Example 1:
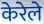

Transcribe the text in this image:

केरेले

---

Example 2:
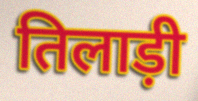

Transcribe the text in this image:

तिलाड़ी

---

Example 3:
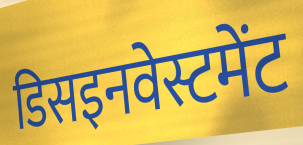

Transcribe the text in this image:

डिसइनवेस्टमेंट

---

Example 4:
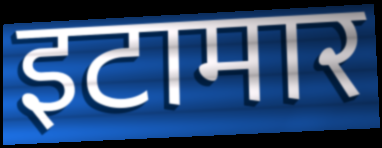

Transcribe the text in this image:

इटामार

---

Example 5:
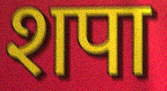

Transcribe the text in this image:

शपा